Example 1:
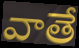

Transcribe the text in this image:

వాతే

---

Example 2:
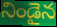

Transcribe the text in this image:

నిండైన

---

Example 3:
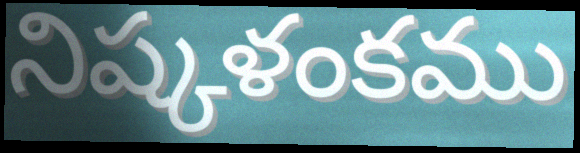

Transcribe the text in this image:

నిష్కళంకము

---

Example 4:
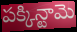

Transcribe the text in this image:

పక్కిన్టామె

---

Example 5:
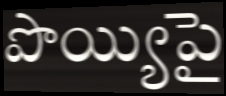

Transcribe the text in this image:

పొయ్యిపై